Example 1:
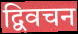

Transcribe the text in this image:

द्विवचन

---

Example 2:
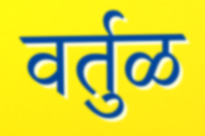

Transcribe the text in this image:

वर्तुळ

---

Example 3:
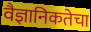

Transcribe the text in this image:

वैज्ञानिकतेचा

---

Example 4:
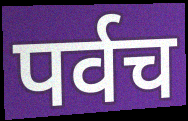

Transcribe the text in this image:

पर्वच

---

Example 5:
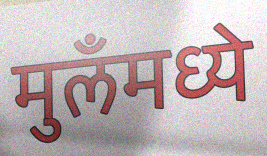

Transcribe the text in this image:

मुलँमध्ये